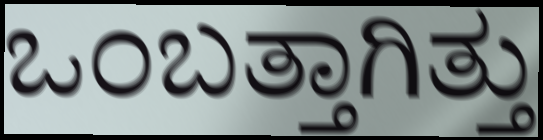
ಒಂಬತ್ತಾಗಿತ್ತು